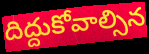
దిద్దుకోవాల్సిన